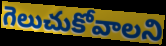
గెలుచుకోవాలని